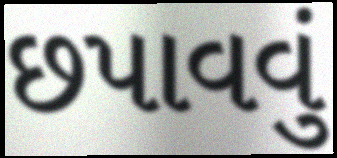
છપાવવું